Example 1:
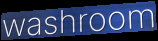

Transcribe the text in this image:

washroom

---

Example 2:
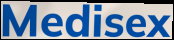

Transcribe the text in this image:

Medisex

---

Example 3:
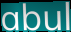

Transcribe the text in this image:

abul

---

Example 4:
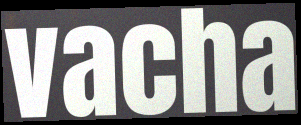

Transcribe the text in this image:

vacha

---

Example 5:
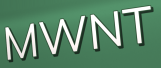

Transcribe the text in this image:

MWNT